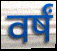
वर्षं